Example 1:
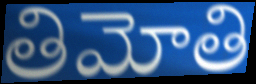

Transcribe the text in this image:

తిమోతి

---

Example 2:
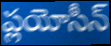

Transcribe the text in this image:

ప్లయోసీన్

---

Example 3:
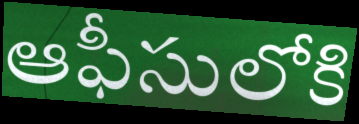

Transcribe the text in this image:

ఆఫీసులోకి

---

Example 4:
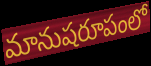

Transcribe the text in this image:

మానుషరూపంలో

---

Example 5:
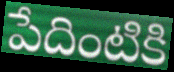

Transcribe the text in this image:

పేదింటికి